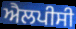
ਐਲਪੀਸੀ